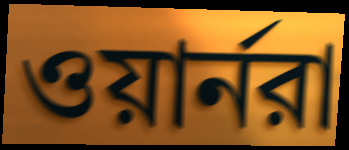
ওয়ার্নরা